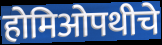
होमिओपथीचे